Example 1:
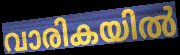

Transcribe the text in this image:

വാരികയിൽ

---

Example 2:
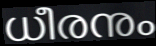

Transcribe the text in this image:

ധീരനും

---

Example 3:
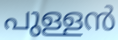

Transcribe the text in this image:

പുള്ളൻ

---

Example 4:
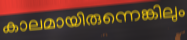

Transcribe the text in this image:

കാലമായിരുന്നെങ്കിലും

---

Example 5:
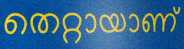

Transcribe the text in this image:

തെറ്റായാണ്